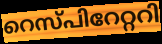
റെസ്പിറേറ്ററി